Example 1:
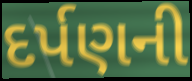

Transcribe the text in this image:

દર્પણની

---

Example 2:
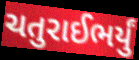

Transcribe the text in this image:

ચતુરાઈભર્યું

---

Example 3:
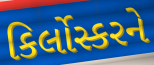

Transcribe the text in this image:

કિર્લોસ્કરને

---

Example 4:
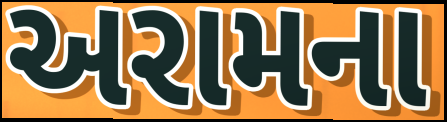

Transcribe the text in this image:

અરામના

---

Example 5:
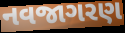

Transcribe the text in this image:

નવજાગરણ